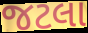
જટલા